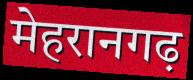
मेहरानगढ़